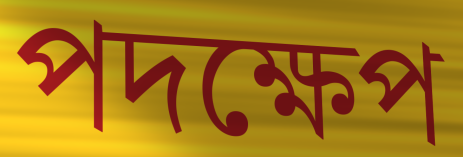
পদক্ষেপ